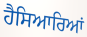
ਹੈਸਿਆਰਿਆਂ